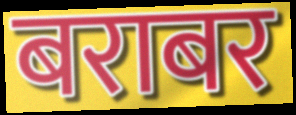
बराबर